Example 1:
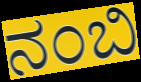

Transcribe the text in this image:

ನಂಬಿ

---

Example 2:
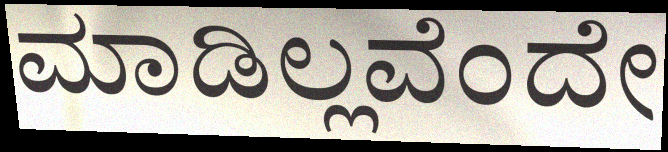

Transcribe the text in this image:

ಮಾಡಿಲ್ಲವೆಂದೇ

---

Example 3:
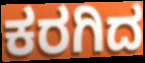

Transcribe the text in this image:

ಕರಗಿದ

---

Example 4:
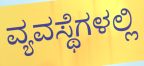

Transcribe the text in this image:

ವ್ಯವಸ್ಥೆಗಳಲ್ಲಿ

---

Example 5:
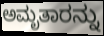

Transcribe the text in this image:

ಅಮೃತಾರನ್ನು